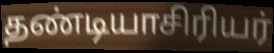
தண்டியாசிரியர்